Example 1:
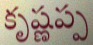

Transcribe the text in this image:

కృష్ణప్ప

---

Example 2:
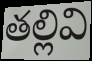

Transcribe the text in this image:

తల్లివి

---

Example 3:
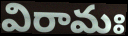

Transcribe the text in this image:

విరామః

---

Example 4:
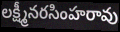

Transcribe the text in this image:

లక్ష్మీనరసింహరావు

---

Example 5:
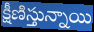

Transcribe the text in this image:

క్షీణిస్తున్నాయి